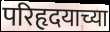
परिहृदयाच्या